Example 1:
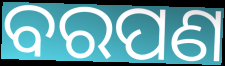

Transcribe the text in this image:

ବରପଣ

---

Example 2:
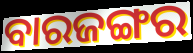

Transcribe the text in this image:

ବାରଜଙ୍ଗର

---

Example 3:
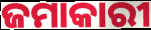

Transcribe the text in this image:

ଜମାକାରୀ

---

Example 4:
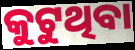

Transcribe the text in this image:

କୁଟୁଥିବା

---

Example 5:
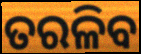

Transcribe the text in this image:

ତରଳିବ